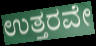
ಉತ್ತರವೇ